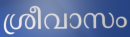
ശ്രീവാസം